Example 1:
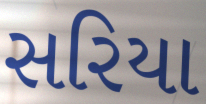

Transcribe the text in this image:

સરિયા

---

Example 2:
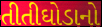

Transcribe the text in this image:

તીતીઘોડાનો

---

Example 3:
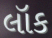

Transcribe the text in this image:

લૉક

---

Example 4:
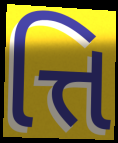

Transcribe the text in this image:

ત્તિ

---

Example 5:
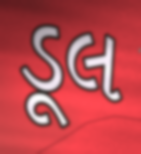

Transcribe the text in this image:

ડૂલ